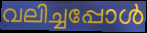
വലിച്ചപ്പോൾ